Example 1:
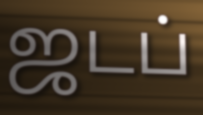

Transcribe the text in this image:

ஜடப்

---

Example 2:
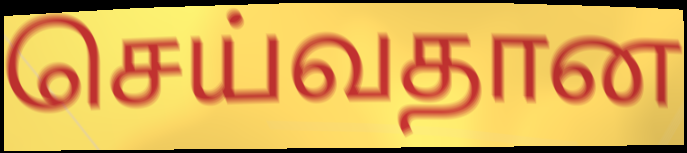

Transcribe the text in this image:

செய்வதான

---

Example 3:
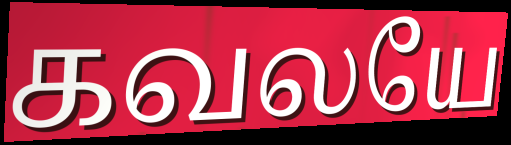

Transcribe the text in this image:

கவலயே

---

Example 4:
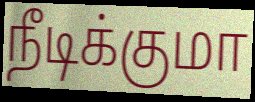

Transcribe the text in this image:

நீடிக்குமா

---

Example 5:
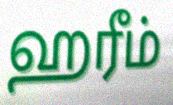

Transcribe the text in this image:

ஹரீம்